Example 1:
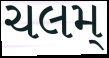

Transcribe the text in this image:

ચલમ્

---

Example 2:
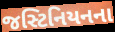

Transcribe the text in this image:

જસ્ટિનિયનના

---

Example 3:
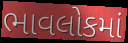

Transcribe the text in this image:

ભાવલોકમાં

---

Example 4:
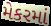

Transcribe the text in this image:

મેકરમાં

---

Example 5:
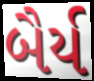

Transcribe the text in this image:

બૈર્ય